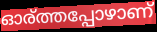
ഓര്ത്തപ്പോഴാണ്